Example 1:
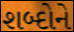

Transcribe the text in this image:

શબ્દોને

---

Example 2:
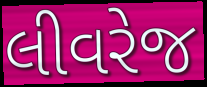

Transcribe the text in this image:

લીવરેજ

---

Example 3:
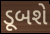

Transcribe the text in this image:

ડૂબશે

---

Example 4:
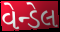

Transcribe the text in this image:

વેન્ડેલ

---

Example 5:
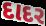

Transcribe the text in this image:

દાદર